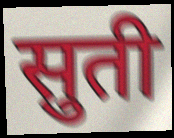
सुती